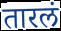
तारलं